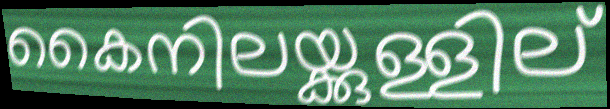
കൈനിലയ്ക്കുള്ളില്